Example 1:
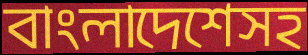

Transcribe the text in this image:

বাংলাদেশেসহ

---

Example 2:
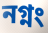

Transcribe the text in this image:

নগ্নং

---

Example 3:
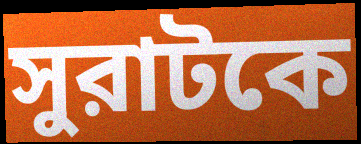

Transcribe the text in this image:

সুরাটকে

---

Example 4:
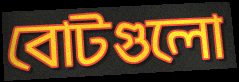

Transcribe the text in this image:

বোটগুলো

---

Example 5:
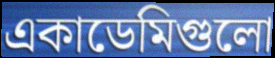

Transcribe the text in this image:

একাডেমিগুলো